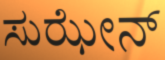
ಸುಝೇನ್